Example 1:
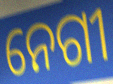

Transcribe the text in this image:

ନେଗୀ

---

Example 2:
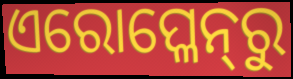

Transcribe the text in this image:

ଏରୋପ୍ଳେନ୍‍ରୁ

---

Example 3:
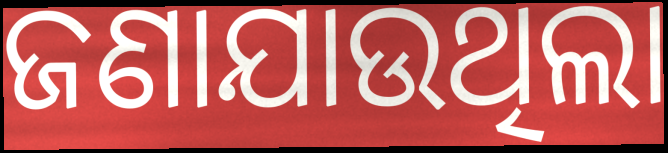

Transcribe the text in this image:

ଜଣାଯାଉଥିଲା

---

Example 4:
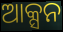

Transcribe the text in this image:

ଆକ୍ସନ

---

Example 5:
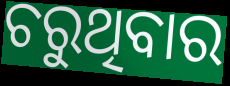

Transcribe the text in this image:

ଚରୁଥିବାର